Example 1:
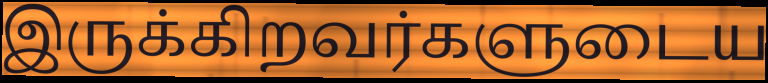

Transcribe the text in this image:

இருக்கிறவர்களுடைய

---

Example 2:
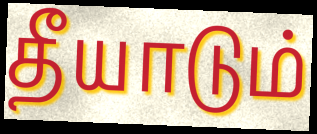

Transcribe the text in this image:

தீயாடும்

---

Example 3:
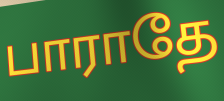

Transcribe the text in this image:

பாராதே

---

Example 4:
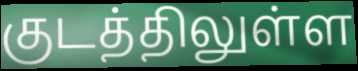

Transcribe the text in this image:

குடத்திலுள்ள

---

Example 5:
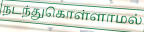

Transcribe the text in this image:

நடந்துகொள்ளாமல்